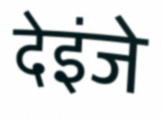
देइंजे